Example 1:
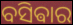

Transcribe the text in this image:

ବସିଵାର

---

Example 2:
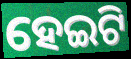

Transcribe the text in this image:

ହେଇଟି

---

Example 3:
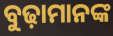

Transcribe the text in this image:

ବୁଢ଼ାମାନଙ୍କ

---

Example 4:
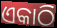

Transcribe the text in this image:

ଏକାଠି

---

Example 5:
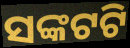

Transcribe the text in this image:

ସଙ୍କଟଟି